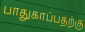
பாதுகாப்பதற்கு